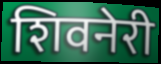
शिवनेरी